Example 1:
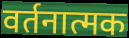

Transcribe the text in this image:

वर्तनात्मक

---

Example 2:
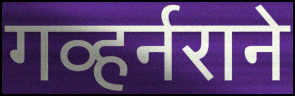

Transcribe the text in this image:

गव्हर्नराने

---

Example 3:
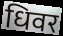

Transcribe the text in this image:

धिवर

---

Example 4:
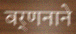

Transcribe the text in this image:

वर्णनाने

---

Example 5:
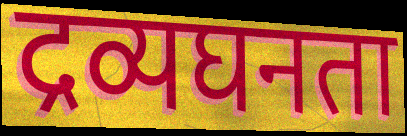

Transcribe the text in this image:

द्रव्यघनता